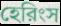
হেরিংস